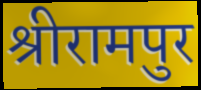
श्रीरामपुर